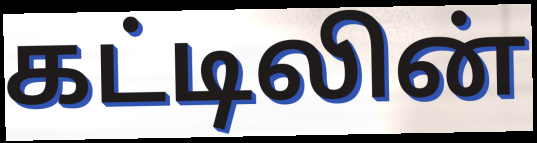
கட்டிலின்